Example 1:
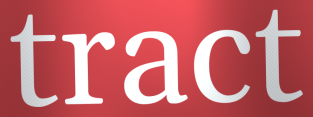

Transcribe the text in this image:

tract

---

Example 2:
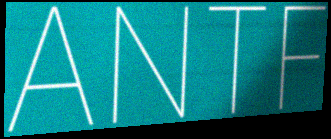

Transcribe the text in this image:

ANTF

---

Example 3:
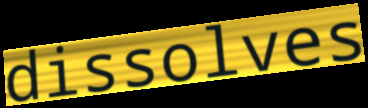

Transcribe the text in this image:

dissolves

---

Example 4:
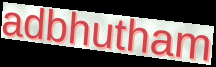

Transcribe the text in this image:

adbhutham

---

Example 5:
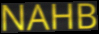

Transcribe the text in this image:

NAHB